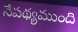
నేపథ్యముంది